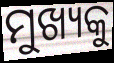
ମୁଖ୍ୟକୁ